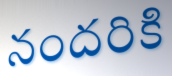
నందరికి